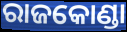
ରାଜକୋଣ୍ଡା